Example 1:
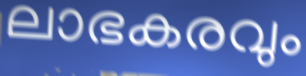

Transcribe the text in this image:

ലാഭകരവും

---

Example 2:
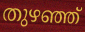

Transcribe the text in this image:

തുഴഞ്ഞ്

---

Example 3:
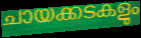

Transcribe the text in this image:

ചായക്കടകളും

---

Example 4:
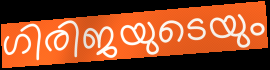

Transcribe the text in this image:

ഗിരിജയുടെയും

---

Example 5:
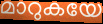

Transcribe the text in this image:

മാറുകയേ